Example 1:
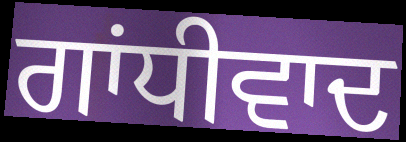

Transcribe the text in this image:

ਗਾਂਧੀਵਾਦ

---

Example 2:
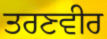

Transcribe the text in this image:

ਤਰਣਵੀਰ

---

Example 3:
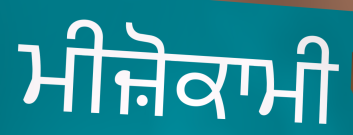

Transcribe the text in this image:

ਮੀਜ਼ੋਕਾਮੀ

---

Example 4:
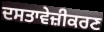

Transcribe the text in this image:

ਦਸਤਾਵੇਜ਼ੀਕਰਣ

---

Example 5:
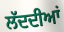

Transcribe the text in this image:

ਲੱਦਦੀਆਂ